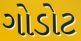
ગોડોટ